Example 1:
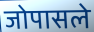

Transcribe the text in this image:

जोपासले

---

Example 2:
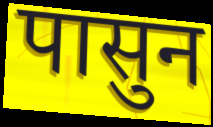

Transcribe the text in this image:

पासुन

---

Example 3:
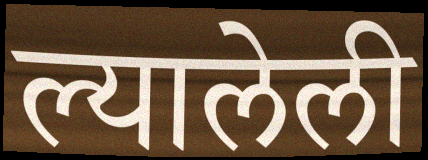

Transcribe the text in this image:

ल्यालेली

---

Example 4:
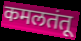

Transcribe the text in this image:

कमलतंतू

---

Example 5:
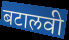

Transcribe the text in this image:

बटालवी